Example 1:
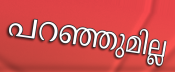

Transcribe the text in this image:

പറഞ്ഞുമില്ല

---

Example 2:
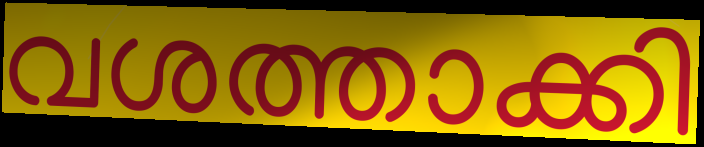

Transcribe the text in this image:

വശത്താക്കി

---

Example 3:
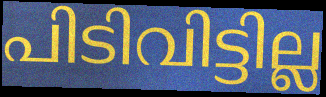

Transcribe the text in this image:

പിടിവിട്ടില്ല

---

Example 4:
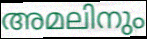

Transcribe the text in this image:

അമലിനും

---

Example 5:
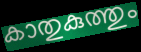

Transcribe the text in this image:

കാതുകുത്തും